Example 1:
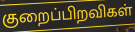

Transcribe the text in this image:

குறைப்பிறவிகள்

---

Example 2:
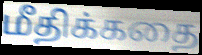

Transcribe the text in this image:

மீதிக்கதை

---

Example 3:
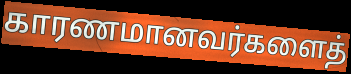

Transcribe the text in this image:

காரணமானவர்களைத்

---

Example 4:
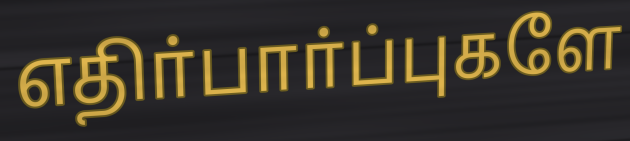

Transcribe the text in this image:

எதிர்பார்ப்புகளே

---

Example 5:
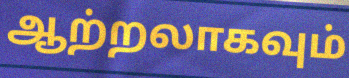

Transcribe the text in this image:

ஆற்றலாகவும்